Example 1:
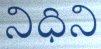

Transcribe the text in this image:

నిధిని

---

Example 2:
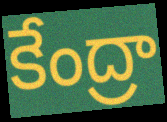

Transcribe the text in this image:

కేంద్రా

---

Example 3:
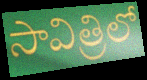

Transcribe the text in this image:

సావిత్రిలో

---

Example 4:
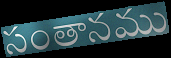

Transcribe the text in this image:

సంతానము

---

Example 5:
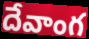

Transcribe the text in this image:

దేవాంగ